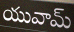
యువామ్